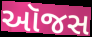
ઑજસ